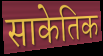
साकेतिक